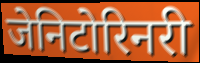
जेनिटोरिनरी